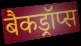
बैकड्रॉप्स